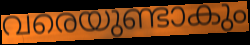
വരെയുണ്ടാകും